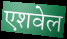
एशवेल